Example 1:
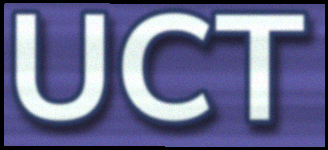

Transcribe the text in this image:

UCT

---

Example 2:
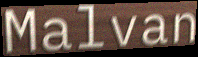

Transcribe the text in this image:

Malvan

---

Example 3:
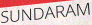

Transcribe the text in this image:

SUNDARAM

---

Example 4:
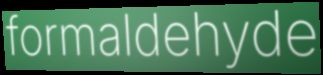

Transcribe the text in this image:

formaldehyde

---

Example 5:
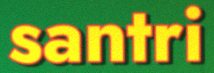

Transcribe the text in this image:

santri